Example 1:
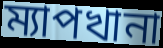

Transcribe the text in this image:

ম্যাপখানা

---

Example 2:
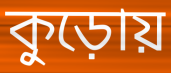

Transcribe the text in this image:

কুড়োয়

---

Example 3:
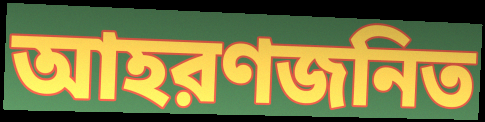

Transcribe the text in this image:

আহরণজনিত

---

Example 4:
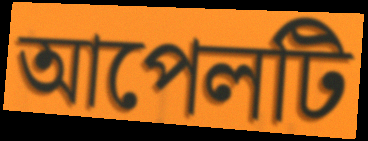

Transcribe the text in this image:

আপেলটি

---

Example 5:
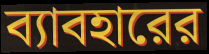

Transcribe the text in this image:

ব্যাবহারের